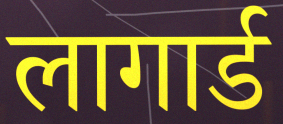
लागार्ड